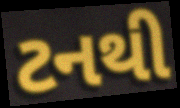
ટનથી